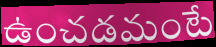
ఉంచడమంటే